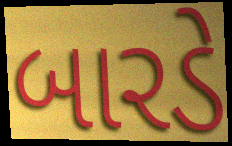
બારડે